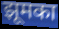
झूमका